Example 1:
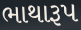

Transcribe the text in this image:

ભાથારૂપ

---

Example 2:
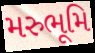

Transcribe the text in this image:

મરુભૂમિ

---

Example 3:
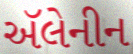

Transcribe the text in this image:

ઍલેનીન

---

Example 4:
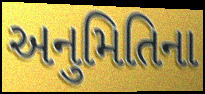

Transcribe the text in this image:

અનુમિતિના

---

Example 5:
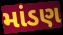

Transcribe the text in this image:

માંડણ